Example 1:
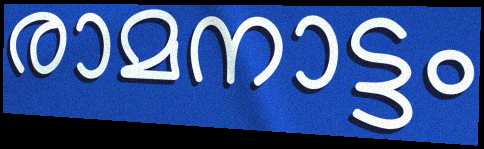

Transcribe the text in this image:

രാമനാട്ടം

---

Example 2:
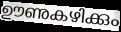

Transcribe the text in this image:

ഊണുകഴിക്കും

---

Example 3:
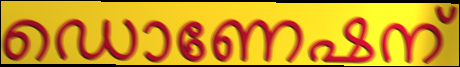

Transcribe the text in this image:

ഡൊണേഷന്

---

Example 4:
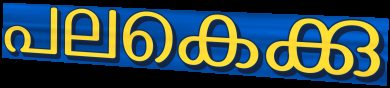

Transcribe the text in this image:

പലകെക്കു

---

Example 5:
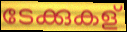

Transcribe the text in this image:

ടേക്കുകള്